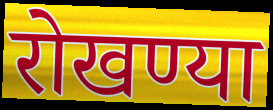
रोखण्या